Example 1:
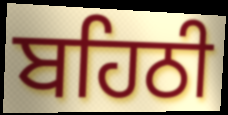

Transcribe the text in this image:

ਬਹਿਠੀ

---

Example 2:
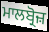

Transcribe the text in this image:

ਮਾਲਬ੍ਰੋਜ਼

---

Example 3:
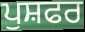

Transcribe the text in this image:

ਪੁਸ਼ਫਰ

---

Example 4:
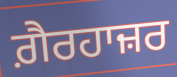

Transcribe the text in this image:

ਗ਼ੈਰਹਾਜ਼ਰ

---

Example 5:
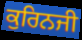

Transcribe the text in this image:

ਕੁਰਿਨਜੀ